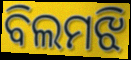
ବିଲମଝି